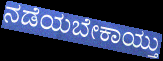
ನಡೆಯಬೇಕಾಯ್ತು